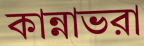
কান্নাভরা